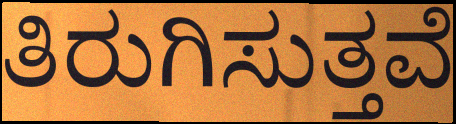
ತಿರುಗಿಸುತ್ತವೆ